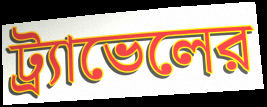
ট্র্যাভেলের